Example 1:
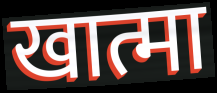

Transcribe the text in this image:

खात्मा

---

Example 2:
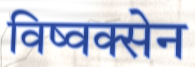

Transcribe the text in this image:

विष्वक्सेन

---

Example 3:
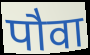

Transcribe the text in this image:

पौवा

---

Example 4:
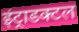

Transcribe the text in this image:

इंट्राडक्टल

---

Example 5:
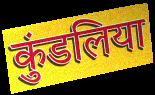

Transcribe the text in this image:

कुंडलिया